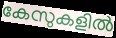
കേസുകളിൽ